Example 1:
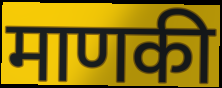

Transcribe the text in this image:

माणकी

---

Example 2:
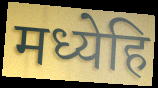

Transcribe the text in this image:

मध्येहि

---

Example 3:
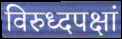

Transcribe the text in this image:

विरुध्दपक्षां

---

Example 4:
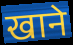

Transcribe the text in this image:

खाने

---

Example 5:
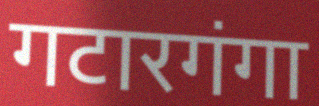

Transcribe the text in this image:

गटारगंगा